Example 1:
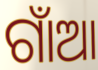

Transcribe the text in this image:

ଗାଁଆ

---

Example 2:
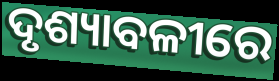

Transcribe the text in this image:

ଦୃଶ୍ୟାବଳୀରେ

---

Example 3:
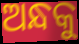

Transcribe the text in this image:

ଅନ୍ଧକୁ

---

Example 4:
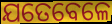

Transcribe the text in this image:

ଯତେବେଳେ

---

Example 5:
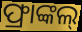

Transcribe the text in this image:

ଫ୍ରାଙ୍କଲ୍